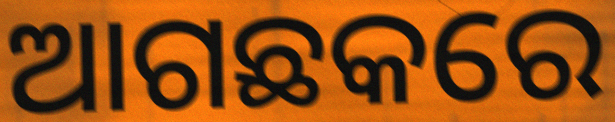
ଆଗଛକରେ